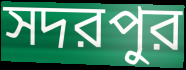
সদরপুর